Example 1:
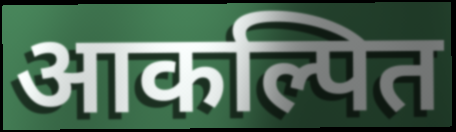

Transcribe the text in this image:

आकल्पित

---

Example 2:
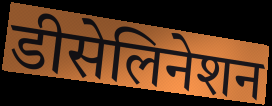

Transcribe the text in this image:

डीसेलिनेशन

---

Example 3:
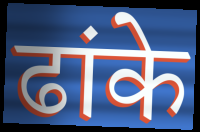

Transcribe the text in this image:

ढांके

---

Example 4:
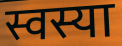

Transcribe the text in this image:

स्वस्या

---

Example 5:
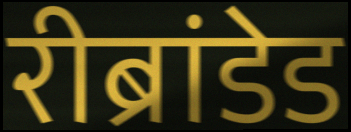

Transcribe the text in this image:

रीब्रांडेड